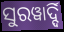
ସୁରୱାର୍ଦ୍ଦି